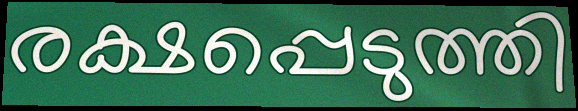
രക്ഷപ്പെടുത്തി